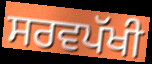
ਸਰਵਪੱਖੀ